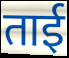
ताई